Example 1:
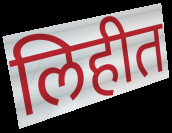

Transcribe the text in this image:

लिहीत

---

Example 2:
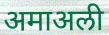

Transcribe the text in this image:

अमाअली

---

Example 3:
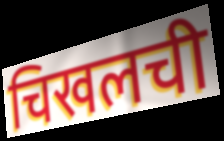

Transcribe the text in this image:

चिखलची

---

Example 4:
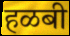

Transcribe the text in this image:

हळबी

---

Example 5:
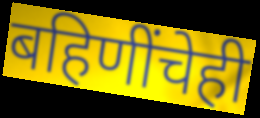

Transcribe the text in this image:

बहिणींचेही